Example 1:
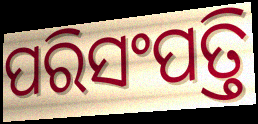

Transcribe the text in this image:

ପରିସଂପତ୍ତି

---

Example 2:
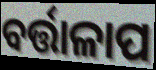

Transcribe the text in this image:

ବର୍ତ୍ତାଳାପ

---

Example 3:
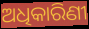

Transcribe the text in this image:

ଅଧିକାରିଣୀ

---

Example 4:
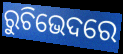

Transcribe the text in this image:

ରୁଚିଭେଦରେ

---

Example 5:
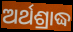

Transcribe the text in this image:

ଅର୍ଥଶ୍ରାଦ୍ଧ